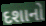
દશાનો